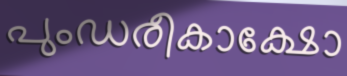
പുംഡരീകാക്ഷോ